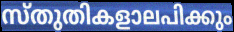
സ്തുതികളാലപിക്കും